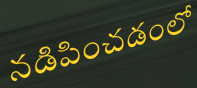
నడిపించడంలో